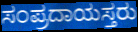
ಸಂಪ್ರದಾಯಸ್ತರು